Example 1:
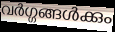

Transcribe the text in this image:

വർഗ്ഗങ്ങൾക്കും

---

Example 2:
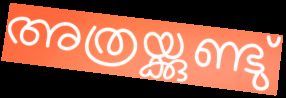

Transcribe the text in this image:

അത്രയ്ക്കുണ്ടു്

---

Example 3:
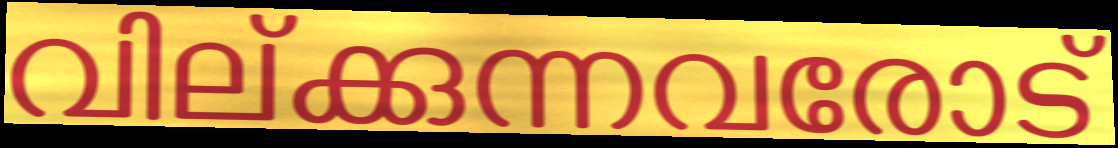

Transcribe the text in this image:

വില്ക്കുന്നവരോട്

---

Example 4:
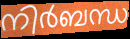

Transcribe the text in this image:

നിർബന്ധ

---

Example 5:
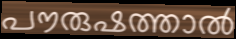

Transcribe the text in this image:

പൗരുഷത്താൽ